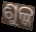
ଶୁଳ୍କ